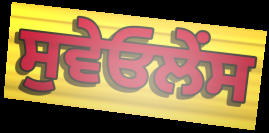
ਸੁਵੇਓਲੇਂਸ